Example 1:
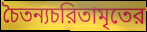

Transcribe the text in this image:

চৈতন্যচরিতামৃতের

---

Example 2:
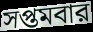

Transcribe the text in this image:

সপ্তমবার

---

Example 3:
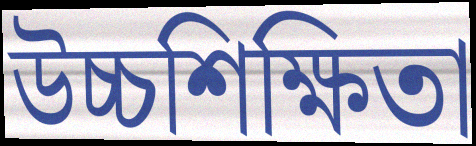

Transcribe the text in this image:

উচ্চশিক্ষিতা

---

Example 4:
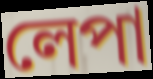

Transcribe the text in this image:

লেপা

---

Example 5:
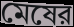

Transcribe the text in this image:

মেষের